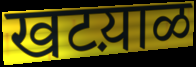
खटय़ाळ